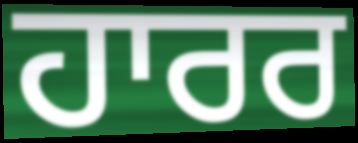
ਹਾਰਰ